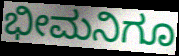
ಭೀಮನಿಗೂ